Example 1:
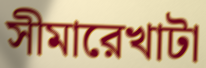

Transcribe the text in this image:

সীমারেখাটা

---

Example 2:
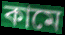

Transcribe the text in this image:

কামে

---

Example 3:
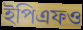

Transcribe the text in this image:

ইপিএফও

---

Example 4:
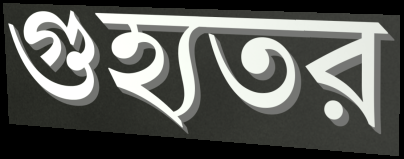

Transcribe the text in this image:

গুহ্যতর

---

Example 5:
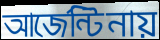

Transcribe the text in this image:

আর্জেন্টিনায়